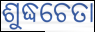
ଶୁଦ୍ଧଚେତା